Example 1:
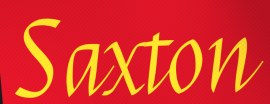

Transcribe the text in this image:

Saxton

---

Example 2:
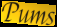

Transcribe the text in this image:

Pums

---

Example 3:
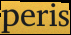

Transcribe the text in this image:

peris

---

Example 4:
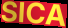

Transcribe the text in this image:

SICA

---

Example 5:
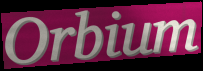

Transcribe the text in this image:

Orbium